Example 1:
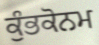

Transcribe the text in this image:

ਕੁੰਭਕੋਨਮ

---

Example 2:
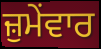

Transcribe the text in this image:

ਜ਼ੁਮੇਂਵਾਰ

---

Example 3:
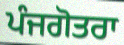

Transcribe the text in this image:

ਪੰਜਗੋਤਰਾ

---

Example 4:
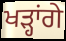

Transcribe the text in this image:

ਖੜ੍ਹਾਂਗੇ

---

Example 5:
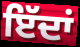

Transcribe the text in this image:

ਇੱਦਾਂ